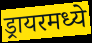
ड्रायरमध्ये